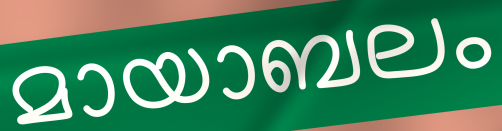
മായാബലം